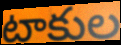
టాకుల